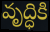
వృద్ధికి